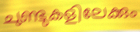
ചുണ്ടുകളിലേക്കും